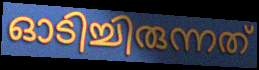
ഓടിച്ചിരുന്നത്